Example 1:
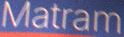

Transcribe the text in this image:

Matram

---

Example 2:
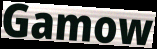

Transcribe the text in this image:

Gamow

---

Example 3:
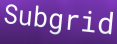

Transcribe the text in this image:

Subgrid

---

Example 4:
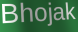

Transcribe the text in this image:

Bhojak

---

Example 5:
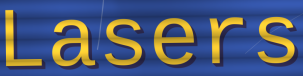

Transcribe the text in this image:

Lasers